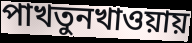
পাখতুনখাওয়ায়